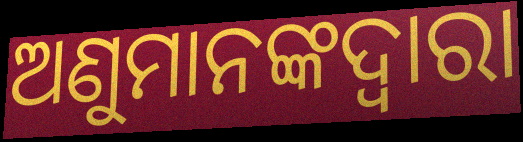
ଅଣୁମାନଙ୍କଦ୍ଵାରା